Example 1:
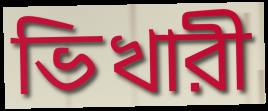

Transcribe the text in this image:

ভিখারী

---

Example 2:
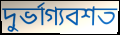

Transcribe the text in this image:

দুর্ভাগ্যবশত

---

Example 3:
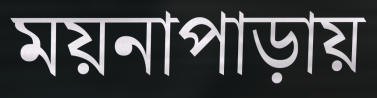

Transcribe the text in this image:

ময়নাপাড়ায়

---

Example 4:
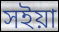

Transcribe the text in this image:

সইয়া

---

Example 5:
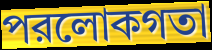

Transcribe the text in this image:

পরলোকগতা